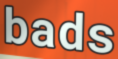
bads